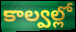
కాల్వల్లో